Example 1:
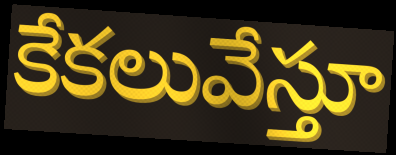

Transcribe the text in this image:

కేకలువేస్తూ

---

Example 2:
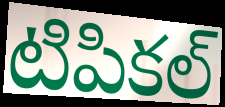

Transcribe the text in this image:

టిపికల్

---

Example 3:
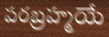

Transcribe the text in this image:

పరబ్రహ్మయే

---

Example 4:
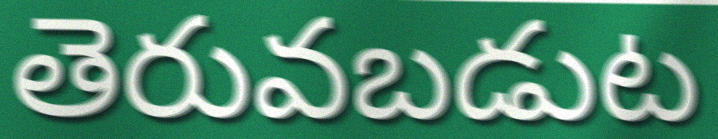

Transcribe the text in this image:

తెరువబడుట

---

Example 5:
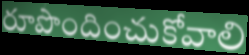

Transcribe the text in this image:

రూపొందించుకోవాలి